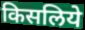
किसलिये